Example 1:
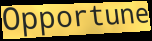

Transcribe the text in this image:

Opportune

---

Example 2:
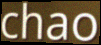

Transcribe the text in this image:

chao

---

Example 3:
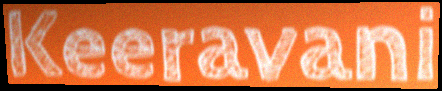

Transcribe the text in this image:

Keeravani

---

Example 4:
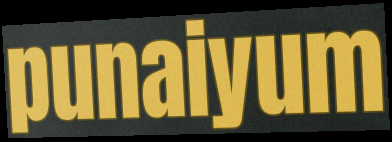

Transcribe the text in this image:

punaiyum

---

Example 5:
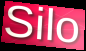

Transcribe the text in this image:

Silo